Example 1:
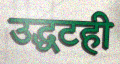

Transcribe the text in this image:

उद्धटही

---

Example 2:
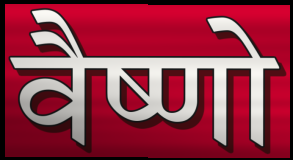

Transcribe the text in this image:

वैष्णो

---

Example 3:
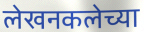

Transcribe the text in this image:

लेखनकलेच्या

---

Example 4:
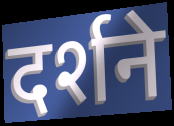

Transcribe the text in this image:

दर्शने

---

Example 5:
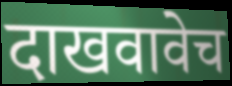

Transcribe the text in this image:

दाखवावेच